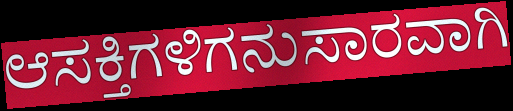
ಆಸಕ್ತಿಗಳಿಗನುಸಾರವಾಗಿ